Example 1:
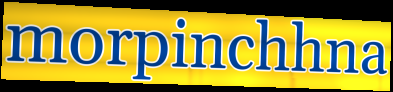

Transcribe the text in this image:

morpinchhna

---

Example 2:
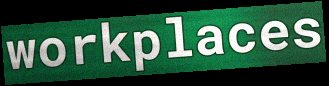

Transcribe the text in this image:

workplaces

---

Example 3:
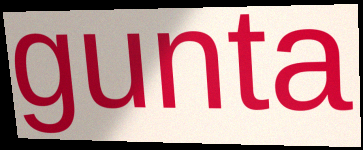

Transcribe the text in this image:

gunta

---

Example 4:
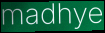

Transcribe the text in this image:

madhye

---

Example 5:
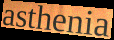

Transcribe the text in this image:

asthenia